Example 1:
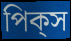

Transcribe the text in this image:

পিক্‌স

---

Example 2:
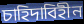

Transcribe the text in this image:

চাহিদাবিহীন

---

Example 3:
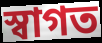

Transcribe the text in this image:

স্বাগত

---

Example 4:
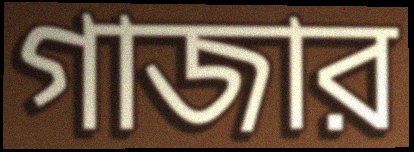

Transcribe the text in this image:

গাজার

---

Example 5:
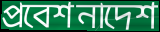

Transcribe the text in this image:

প্রবেশনাদেশ